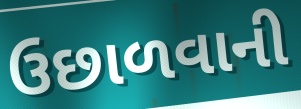
ઉછાળવાની